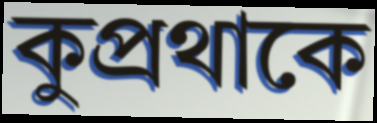
কুপ্রথাকে